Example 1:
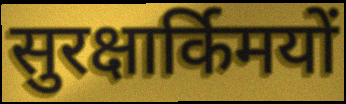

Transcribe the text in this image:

सुरक्षार्किमयों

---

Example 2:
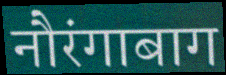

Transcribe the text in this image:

नौरंगाबाग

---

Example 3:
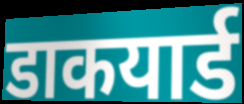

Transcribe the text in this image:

डाकयार्ड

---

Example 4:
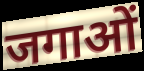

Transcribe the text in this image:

जगाओं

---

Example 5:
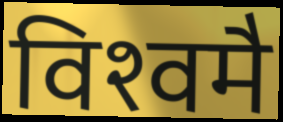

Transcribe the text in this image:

विश्वमै